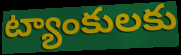
ట్యాంకులకు